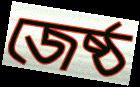
জেষ্ঠ